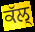
ਕੱਲ੍